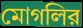
মোগলির